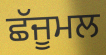
ਛੱਜੂਮਲ